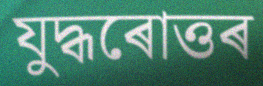
যুদ্ধৰোত্তৰ